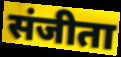
संजीता